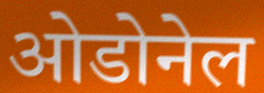
ओडोनेल